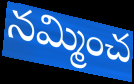
నమ్మించ